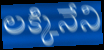
లక్కినేని